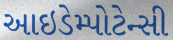
આઇડેમ્પોટેન્સી